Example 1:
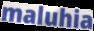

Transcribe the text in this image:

maluhia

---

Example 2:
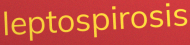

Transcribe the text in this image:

leptospirosis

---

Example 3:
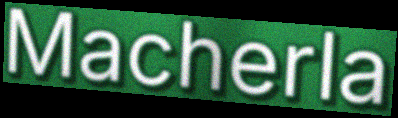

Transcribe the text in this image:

Macherla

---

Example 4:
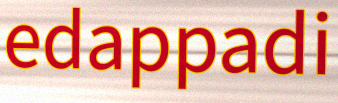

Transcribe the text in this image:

edappadi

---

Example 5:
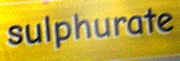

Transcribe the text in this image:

sulphurate